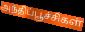
அந்திப்பூச்சிகள்